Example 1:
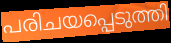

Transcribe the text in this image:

പരിചയപ്പെടുത്തി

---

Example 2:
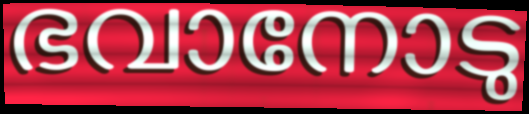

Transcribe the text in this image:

ഭവാനോടു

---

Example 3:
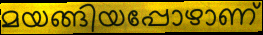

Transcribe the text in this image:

മയങ്ങിയപ്പോഴാണ്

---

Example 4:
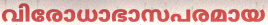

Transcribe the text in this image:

വിരോധാഭാസപരമായ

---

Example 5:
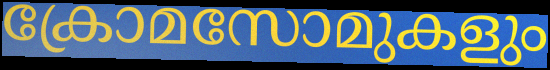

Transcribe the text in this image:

ക്രോമസോമുകളും